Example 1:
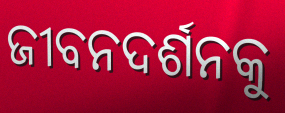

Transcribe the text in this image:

ଜୀବନଦର୍ଶନକୁ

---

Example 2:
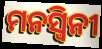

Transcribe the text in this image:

ମନସ୍ୱିନୀ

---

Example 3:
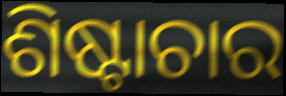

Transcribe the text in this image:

ଶିଷ୍ଟାଚାର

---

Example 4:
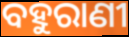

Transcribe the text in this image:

ବହୁରାଣୀ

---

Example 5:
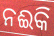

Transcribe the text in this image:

ନଈକି